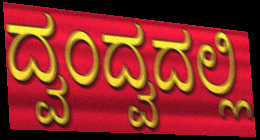
ದ್ವಂದ್ವದಲ್ಲಿ